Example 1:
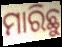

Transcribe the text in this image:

ମାରିଛୁ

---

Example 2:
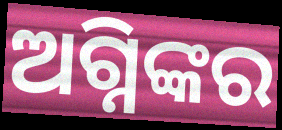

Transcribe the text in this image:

ଅଗ୍ନିଙ୍କର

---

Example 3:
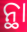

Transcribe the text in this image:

ନ୍ଥା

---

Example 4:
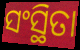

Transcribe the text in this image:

ସଂସ୍ଥିତା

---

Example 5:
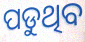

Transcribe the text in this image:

ପଡୁଥିବ